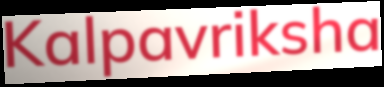
Kalpavriksha